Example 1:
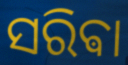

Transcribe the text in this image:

ସରିଵା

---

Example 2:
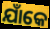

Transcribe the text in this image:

ଯାଁକେ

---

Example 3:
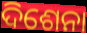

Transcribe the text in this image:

ଦିଶେନା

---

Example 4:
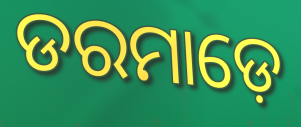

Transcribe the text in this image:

ଡରମାଡ଼େ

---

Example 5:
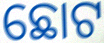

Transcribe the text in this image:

ଛୋଟ